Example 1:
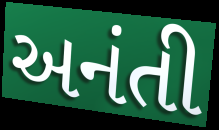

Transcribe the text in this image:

અનંતી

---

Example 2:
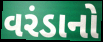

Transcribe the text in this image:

વરંડાનો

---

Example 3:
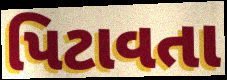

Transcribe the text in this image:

પિટાવતા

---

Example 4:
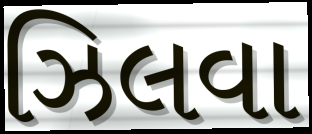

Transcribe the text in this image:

ઝિલવા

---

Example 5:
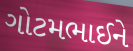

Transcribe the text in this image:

ગોટમભાઈને